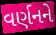
વર્ણનને